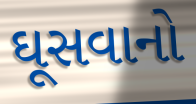
ઘૂસવાનો